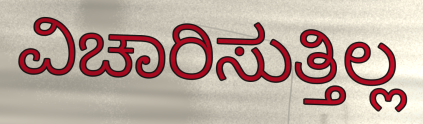
ವಿಚಾರಿಸುತ್ತಿಲ್ಲ